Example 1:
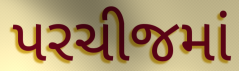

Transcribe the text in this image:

પરચીજમાં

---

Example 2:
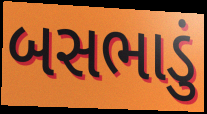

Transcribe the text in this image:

બસભાડું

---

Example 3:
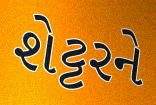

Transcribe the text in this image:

શેટ્ટરને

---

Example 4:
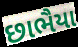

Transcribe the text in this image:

છાભૈયા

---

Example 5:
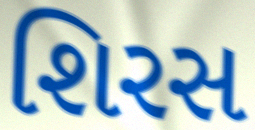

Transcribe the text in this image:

શિરસ